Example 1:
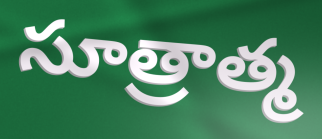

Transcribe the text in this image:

సూత్రాత్మ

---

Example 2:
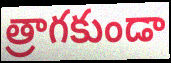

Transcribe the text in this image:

త్రాగకుండా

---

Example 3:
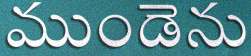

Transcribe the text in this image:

ముండెను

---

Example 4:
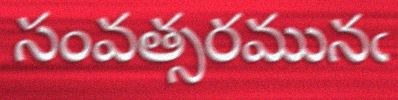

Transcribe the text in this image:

సంవత్సరమునఁ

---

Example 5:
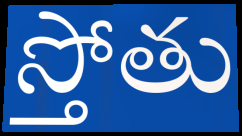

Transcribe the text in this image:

స్తోతు